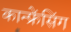
कान्फ्रेंसिंग